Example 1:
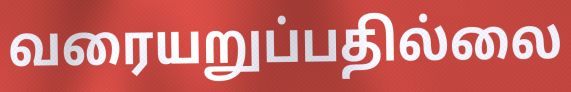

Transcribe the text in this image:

வரையறுப்பதில்லை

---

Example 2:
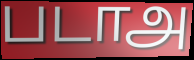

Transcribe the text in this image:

படாஅ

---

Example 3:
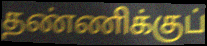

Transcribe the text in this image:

தண்ணிக்குப்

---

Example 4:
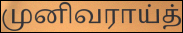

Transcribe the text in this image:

முனிவராய்த்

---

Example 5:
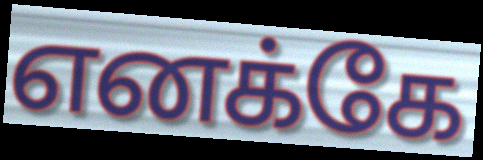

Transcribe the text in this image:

எனக்கே